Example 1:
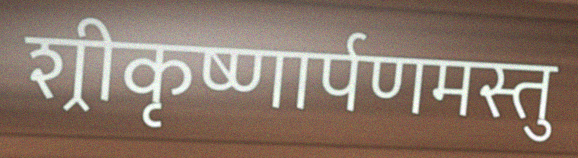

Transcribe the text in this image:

श्रीकृष्णार्पणमस्तु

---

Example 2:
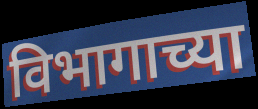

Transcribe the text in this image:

विभागाच्या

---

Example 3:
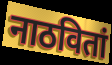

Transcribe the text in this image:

नाठवितां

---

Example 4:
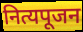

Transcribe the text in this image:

नित्यपूजन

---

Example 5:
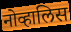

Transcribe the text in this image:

नोव्हालिस